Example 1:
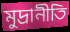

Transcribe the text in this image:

মুদ্রানীতি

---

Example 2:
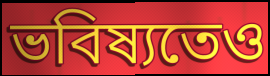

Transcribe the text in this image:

ভবিষ্যতেও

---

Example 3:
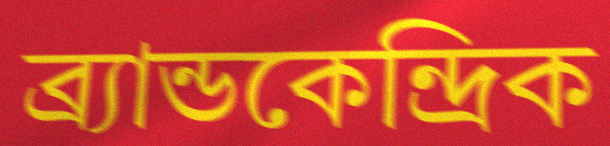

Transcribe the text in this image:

ব্র্যান্ডকেন্দ্রিক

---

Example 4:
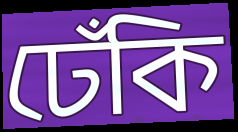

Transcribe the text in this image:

ঢেঁকি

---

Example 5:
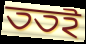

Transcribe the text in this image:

ততই